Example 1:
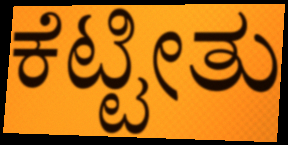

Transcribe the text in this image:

ಕೆಟ್ಟೀತು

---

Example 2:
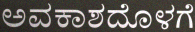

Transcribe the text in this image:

ಅವಕಾಶದೊಳಗೆ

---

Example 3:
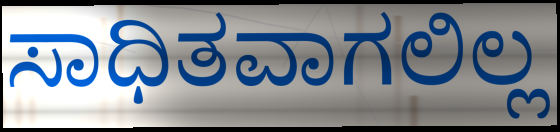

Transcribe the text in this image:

ಸಾಧಿತವಾಗಲಿಲ್ಲ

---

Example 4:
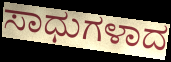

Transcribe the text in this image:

ಸಾಧುಗಳಾದ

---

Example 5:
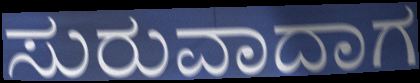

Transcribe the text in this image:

ಸುರುವಾದಾಗ